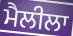
ਮੈਲੀਲਾ